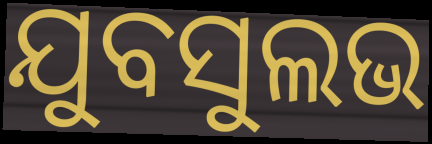
ଯୁବସୁଲଭ